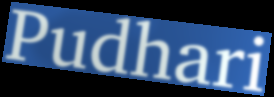
Pudhari